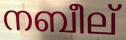
നബീല്